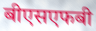
बीएसएफबी